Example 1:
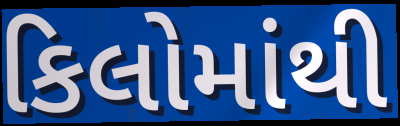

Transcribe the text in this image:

કિલોમાંથી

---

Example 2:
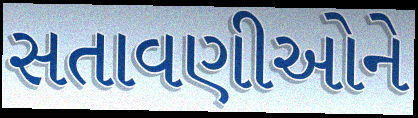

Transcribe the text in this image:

સતાવણીઓને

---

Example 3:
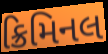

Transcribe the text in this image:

ક્રિમિનલ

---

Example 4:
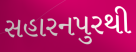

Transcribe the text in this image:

સહારનપુરથી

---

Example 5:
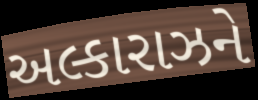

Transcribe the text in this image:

અલ્કારાઝને